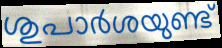
ശുപാർശയുണ്ട്